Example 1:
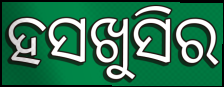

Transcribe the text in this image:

ହସଖୁସିର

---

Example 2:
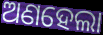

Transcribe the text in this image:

ଅଣହେଲା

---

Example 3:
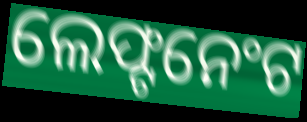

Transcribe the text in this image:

ଲେଫ୍ଟନେଂଟ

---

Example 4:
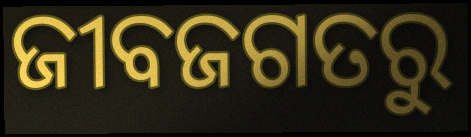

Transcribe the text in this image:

ଜୀବଜଗତରୁ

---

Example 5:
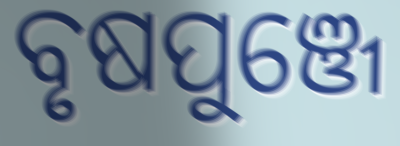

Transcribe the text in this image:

ବୃଷପୁଞ୍ଜେ